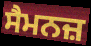
ਸੈਮਨਜ਼